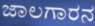
ಜಾಲಗಾರನ